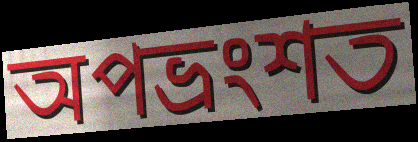
অপভ্ৰংশত